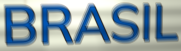
BRASIL